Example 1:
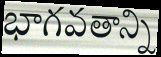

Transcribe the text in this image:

భాగవతాన్ని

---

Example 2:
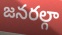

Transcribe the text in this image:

జనరల్గా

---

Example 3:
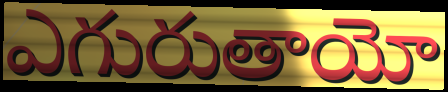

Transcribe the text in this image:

ఎగురుతాయో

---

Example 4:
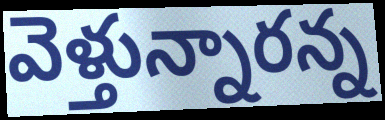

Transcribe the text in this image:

వెళ్తున్నారన్న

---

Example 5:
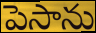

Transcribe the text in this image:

పెసాను